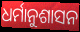
ଧର୍ମାନୁଶାସନ